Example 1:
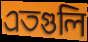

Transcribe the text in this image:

এতগুলি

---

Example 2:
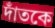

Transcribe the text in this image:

দাঁতকে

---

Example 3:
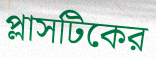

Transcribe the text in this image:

প্লাসটিকের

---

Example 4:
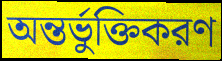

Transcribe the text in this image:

অন্তর্ভুক্তিকরণ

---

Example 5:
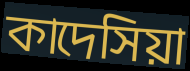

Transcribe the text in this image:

কাদেসিয়া